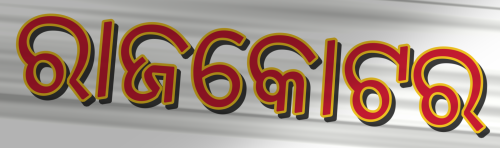
ରାଜକୋଟର